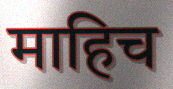
माहिच